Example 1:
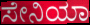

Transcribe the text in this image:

ಸೇನಿಯಾ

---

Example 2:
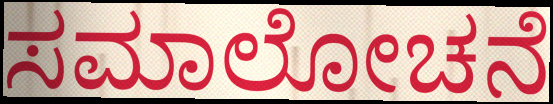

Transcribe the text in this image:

ಸಮಾಲೋಚನೆ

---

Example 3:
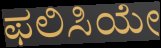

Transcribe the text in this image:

ಫಲಿಸಿಯೇ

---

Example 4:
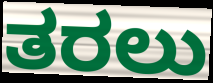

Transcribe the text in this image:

ತರಲು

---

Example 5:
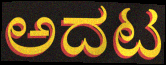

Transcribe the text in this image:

ಅದಟ